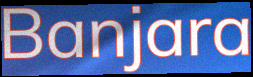
Banjara